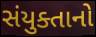
સંયુક્તાનો